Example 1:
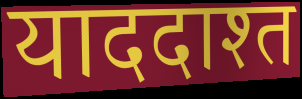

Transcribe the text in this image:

याददाश्त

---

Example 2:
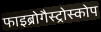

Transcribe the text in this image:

फाइब्रोगैस्ट्रोस्कोप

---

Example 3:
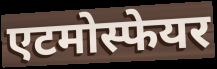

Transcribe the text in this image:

एटमोस्फेयर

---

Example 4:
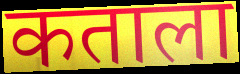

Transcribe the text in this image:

कताला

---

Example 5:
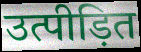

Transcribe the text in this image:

उत्पीड़ित